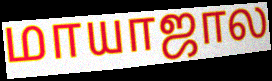
மாயாஜால